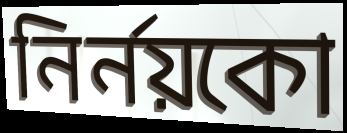
নিৰ্নয়কো